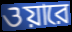
ওয়ারে